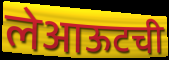
लेआऊटची